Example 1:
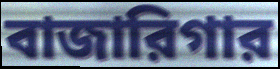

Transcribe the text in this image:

বাজারিগার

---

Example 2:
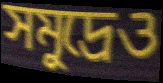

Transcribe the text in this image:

সমুদ্রেও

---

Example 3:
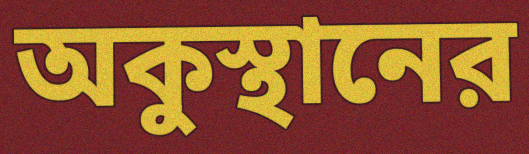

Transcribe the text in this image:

অকুস্থানের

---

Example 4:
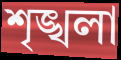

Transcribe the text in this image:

শৃঙ্খলা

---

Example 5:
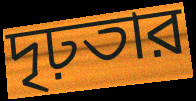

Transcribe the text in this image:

দৃঢ়তার